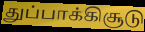
துப்பாக்கிசூடு